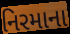
નિરમાના